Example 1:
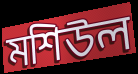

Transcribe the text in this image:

মশিউল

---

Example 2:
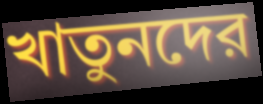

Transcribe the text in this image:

খাতুনদের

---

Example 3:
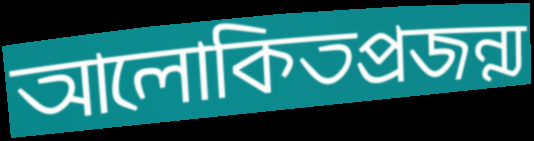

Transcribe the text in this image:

আলোকিতপ্রজন্ম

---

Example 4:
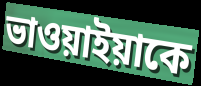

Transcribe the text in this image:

ভাওয়াইয়াকে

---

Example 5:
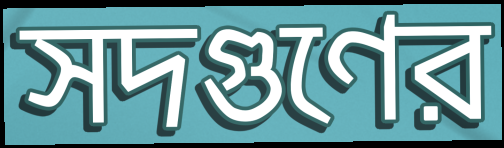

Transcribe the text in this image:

সদগুণের